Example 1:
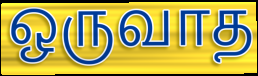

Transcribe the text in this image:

ஒருவாத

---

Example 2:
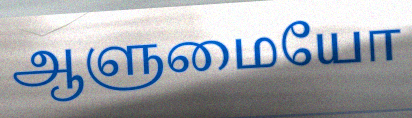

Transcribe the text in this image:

ஆளுமையோ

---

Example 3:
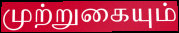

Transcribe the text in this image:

முற்றுகையும்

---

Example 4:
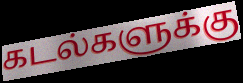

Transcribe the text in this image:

கடல்களுக்கு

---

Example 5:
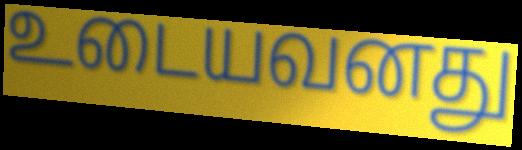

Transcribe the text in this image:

உடையவனது